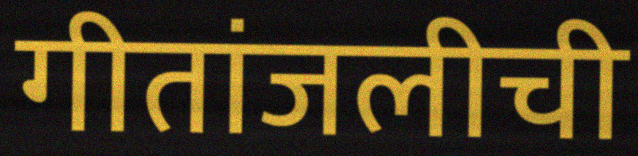
गीतांजलीची